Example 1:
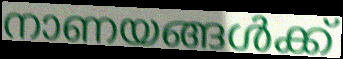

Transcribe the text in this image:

നാണയങ്ങൾക്ക്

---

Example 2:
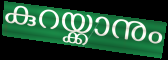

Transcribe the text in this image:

കുറയ്ക്കാനും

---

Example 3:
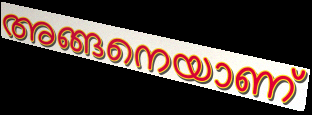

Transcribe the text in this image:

അങ്ങനെയാണ്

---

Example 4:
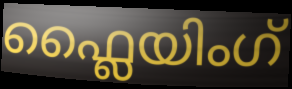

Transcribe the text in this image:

ഫ്ലൈയിംഗ്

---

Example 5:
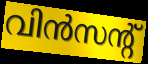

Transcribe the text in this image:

വിൻസന്റ്